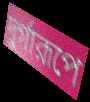
দুর্গারূপে